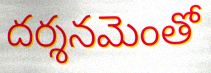
దర్శనమెంతో